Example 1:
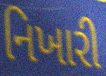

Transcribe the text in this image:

નિખારી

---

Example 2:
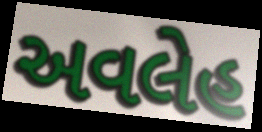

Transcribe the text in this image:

અવલેહ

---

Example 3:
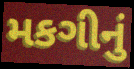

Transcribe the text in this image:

મકગીનું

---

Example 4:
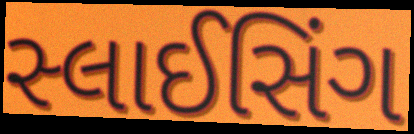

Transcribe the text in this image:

સ્લાઈસિંગ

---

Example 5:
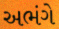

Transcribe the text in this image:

અભંગે